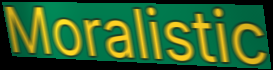
Moralistic